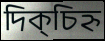
দিক্‌চিহ্ন